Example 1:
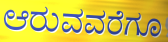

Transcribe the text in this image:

ಆರುವವರೆಗೂ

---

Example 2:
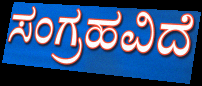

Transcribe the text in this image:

ಸಂಗ್ರಹವಿದೆ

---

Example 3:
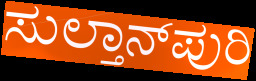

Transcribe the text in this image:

ಸುಲ್ತಾನ್‌ಪುರಿ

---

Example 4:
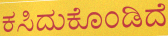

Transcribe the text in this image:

ಕಸಿದುಕೊಂಡಿದೆ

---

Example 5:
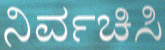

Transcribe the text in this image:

ನಿರ್ವಚಿಸಿ